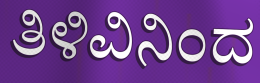
ತಿಳಿವಿನಿಂದ